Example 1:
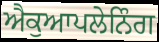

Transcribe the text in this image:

ਐਕੁਆਪਲੇਨਿੰਗ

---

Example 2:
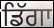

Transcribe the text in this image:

ਡਿੱਗਾ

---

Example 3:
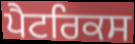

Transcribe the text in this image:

ਪੈਟਰਿਕਸ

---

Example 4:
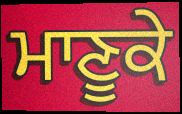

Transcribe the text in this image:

ਮਾਣੂਕੇ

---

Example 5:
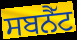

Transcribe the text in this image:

ਸਬਨੈੱਟ